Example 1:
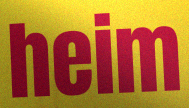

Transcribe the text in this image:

heim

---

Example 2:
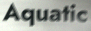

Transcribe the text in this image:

Aquatic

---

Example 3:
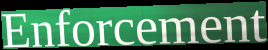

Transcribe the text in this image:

Enforcement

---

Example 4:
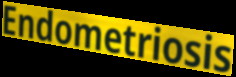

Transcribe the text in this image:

Endometriosis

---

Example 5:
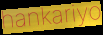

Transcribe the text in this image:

hankariyo